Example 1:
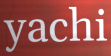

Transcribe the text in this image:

yachi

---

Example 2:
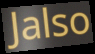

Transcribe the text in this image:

Jalso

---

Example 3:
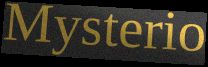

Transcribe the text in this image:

Mysterio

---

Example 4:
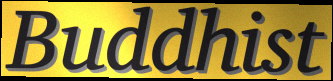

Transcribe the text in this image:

Buddhist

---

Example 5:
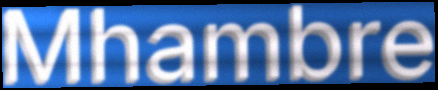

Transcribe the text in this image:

Mhambre